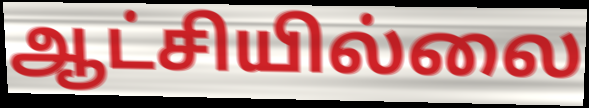
ஆட்சியில்லை